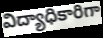
విద్యాధికారిగా